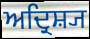
ਅਦ੍ਰਿਸ਼੍ਯ